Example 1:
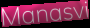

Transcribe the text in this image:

Manasvi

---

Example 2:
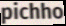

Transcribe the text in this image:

pichho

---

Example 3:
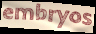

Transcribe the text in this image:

embryos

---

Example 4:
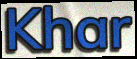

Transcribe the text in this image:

Khar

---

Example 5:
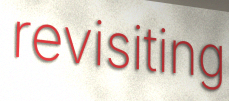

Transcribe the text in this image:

revisiting